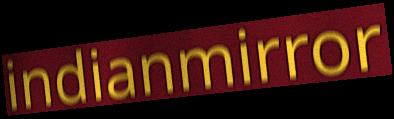
indianmirror